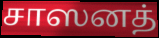
சாஸனத்